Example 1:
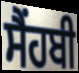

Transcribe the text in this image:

ਸੈਂਹਬੀ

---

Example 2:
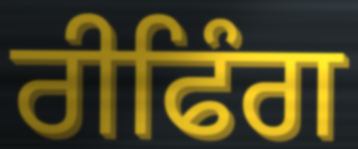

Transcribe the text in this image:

ਰੀਫਿੰਗ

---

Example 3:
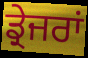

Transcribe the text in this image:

ਡ੍ਰੇਜਰਾਂ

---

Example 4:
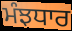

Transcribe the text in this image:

ਮੰਝਧਾਰ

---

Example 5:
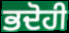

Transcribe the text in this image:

ਭਦੋਹੀ